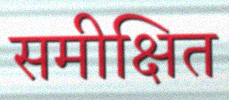
समीक्षित